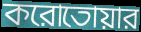
করোতোয়ার